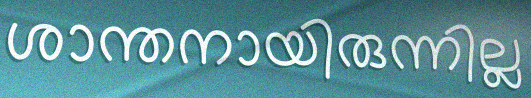
ശാന്തനായിരുന്നില്ല